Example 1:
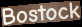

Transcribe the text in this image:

Bostock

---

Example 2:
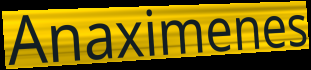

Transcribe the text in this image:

Anaximenes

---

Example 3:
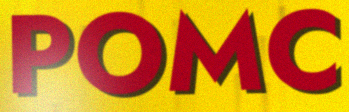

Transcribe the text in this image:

POMC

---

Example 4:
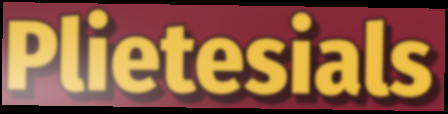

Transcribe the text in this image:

Plietesials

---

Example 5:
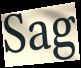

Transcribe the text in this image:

Sag